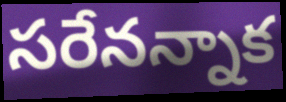
సరేనన్నాక